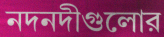
নদনদীগুলোর